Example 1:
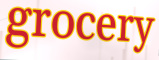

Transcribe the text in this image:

grocery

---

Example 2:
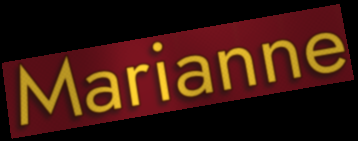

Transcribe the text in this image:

Marianne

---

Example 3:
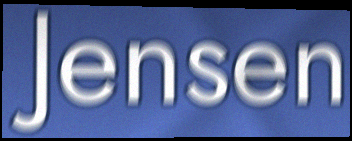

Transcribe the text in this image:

Jensen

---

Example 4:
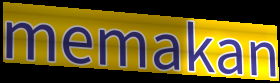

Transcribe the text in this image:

memakan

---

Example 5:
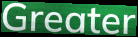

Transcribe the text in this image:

Greater